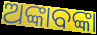
ଅଙ୍କାବଙ୍କା